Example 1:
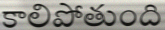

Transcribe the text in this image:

కాలిపోతుంది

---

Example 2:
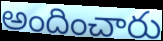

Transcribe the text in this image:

అందించారు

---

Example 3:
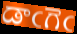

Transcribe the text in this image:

డాఁగెఁ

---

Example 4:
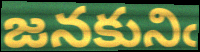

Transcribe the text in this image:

జనకునిఁ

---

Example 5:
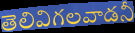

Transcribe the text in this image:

తెలివిగలవాడనీ